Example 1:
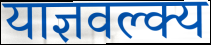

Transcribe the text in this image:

याज्ञवल्क्य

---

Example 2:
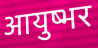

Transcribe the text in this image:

आयुष्भर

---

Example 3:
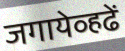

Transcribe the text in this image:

जगायेव्हढें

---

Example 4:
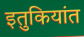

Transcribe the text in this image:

इतुकियांत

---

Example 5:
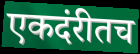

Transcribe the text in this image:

एकदंरीतच